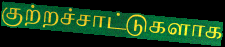
குற்றச்சாட்டுகளாக